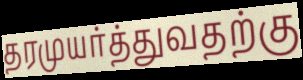
தரமுயர்த்துவதற்கு